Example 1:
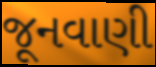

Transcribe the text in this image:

જૂનવાણી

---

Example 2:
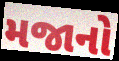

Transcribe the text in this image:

મજાનો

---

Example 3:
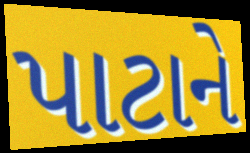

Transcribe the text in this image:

પાટાને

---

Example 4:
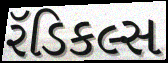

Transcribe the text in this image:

રૅડિકલ્સ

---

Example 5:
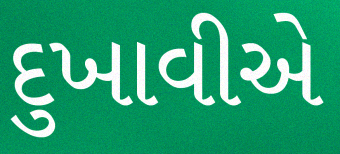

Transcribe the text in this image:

દુખાવીએ